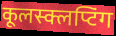
कूलस्क्लप्टिंग